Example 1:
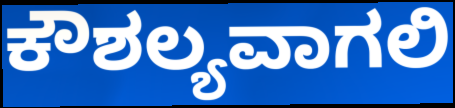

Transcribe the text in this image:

ಕೌಶಲ್ಯವಾಗಲಿ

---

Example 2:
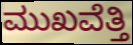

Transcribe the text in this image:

ಮುಖವೆತ್ತಿ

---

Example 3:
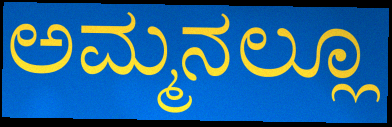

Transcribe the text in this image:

ಅಮ್ಮನಲ್ಲೂ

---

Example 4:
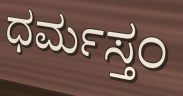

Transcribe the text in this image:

ಧರ್ಮಸ್ತಂ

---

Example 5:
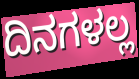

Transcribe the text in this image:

ದಿನಗಳಲ್ಲ